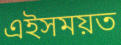
এইসময়ত